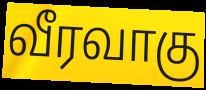
வீரவாகு